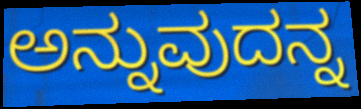
ಅನ್ನುವುದನ್ನ